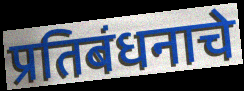
प्रतिबंधनाचे